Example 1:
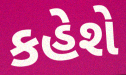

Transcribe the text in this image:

કહેશે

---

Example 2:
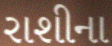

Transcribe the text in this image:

રાશીના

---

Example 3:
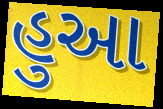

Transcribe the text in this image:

હુઆ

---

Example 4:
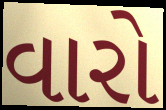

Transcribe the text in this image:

વારો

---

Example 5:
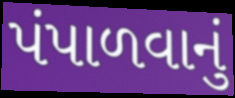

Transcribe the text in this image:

પંપાળવાનું